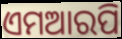
ଏମଆରପି